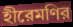
হীরেমণির